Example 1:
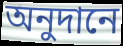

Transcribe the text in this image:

অনুদানে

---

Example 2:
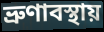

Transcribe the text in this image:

ভ্রুণাবস্থায়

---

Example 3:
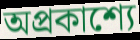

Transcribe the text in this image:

অপ্রকাশ্যে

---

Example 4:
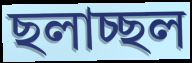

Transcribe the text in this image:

ছলাচ্ছল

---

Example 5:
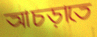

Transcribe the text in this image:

আচড়াতে